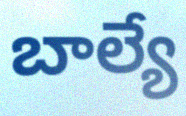
బాల్యే